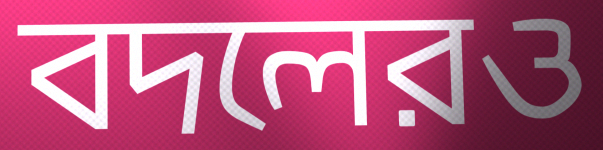
বদলেরও